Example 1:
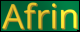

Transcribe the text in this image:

Afrin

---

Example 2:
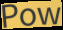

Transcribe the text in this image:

Pow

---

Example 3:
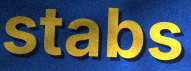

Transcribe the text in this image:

stabs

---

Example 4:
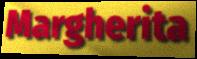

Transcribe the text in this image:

Margherita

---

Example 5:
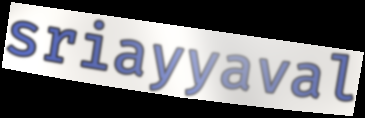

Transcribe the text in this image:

sriayyaval